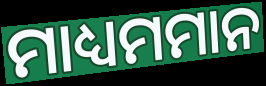
ମାଧ୍ୟମମାନ